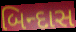
બિન્દાસ